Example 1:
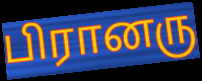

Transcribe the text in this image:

பிரானரு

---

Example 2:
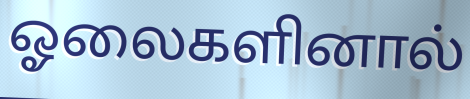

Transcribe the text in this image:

ஓலைகளினால்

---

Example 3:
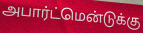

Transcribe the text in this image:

அபார்ட்மென்டுக்கு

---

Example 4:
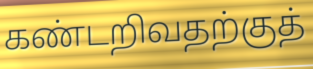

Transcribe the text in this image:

கண்டறிவதற்குத்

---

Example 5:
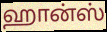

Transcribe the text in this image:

ஹான்ஸ்